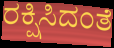
ರಕ್ಷಿಸಿದಂತೆ